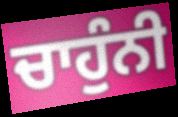
ਚਾਹੁੰਨੀ